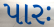
પારઃ